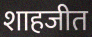
शाहजीत